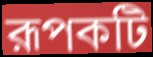
রূপকটি